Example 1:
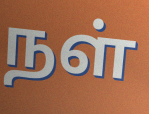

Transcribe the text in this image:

நள்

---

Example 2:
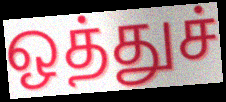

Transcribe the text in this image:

ஒத்துச்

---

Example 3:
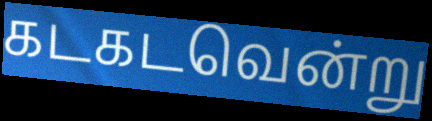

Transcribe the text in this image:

கடகடவென்று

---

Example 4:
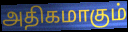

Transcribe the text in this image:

அதிகமாகும்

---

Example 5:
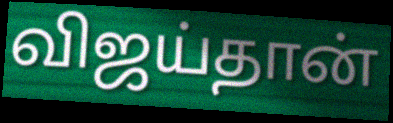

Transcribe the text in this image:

விஜய்தான்